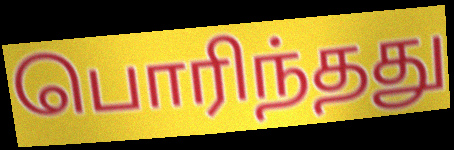
பொரிந்தது